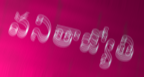
వనితాజ్యోతి